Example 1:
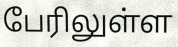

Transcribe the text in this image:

பேரிலுள்ள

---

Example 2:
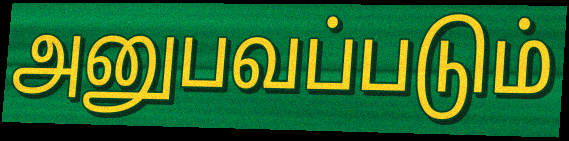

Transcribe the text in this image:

அனுபவப்படும்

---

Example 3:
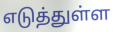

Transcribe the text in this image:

எடுத்துள்ள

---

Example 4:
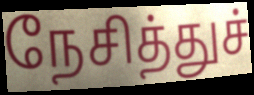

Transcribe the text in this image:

நேசித்துச்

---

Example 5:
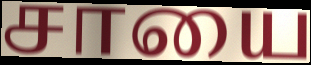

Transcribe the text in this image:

சாயை